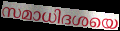
സമാധിദശയെ